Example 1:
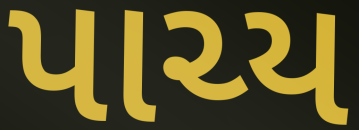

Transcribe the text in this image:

પાચ્ય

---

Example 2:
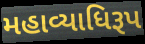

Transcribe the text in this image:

મહાવ્યાધિરૂપ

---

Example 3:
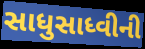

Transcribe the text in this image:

સાધુસાધ્વીની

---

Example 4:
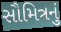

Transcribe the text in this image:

સૌમિત્રનું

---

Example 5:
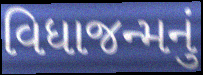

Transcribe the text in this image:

વિધાજન્મનું